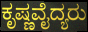
ಕೃಷ್ಣವೈದ್ಯರು